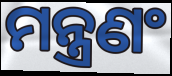
ମନ୍ତ୍ରଣଂ